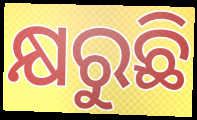
କ୍ଷରୁଛି